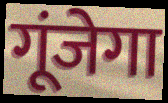
गूंजेगा